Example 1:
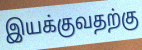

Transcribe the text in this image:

இயக்குவதற்கு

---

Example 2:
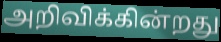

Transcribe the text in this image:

அறிவிக்கின்றது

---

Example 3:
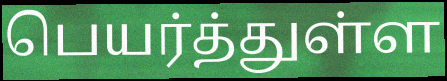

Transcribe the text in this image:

பெயர்த்துள்ள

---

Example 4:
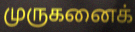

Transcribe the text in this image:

முருகனைக்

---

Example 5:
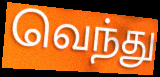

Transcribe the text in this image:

வெந்து